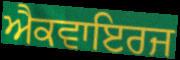
ਐਕਵਾਇਰਜ